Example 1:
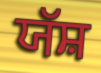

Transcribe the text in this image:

ਯੱਸ਼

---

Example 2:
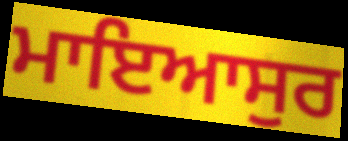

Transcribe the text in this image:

ਮਾਇਆਸੁਰ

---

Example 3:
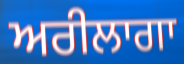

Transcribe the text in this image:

ਅਰੀਲਾਗਾ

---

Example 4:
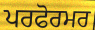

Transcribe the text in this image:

ਪਰਫੋਰਮਰ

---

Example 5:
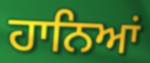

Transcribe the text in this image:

ਹਾਨਿਆਂ